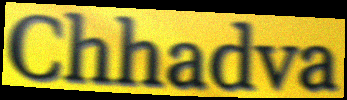
Chhadva